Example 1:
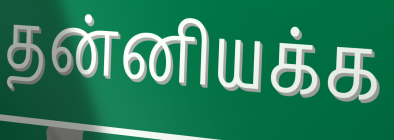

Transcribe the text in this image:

தன்னியக்க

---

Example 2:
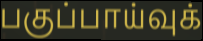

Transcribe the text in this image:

பகுப்பாய்வுக்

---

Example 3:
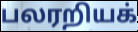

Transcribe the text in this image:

பலரறியக்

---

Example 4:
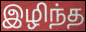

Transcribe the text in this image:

இழிந்த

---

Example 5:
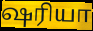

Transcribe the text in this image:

ஷரியா